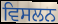
ਵਿਸਲਨ